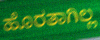
ಹೊರತಾಗಿಲ್ಲ